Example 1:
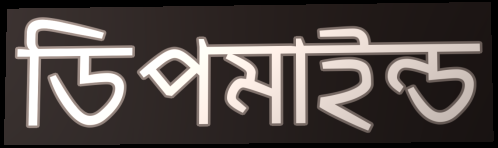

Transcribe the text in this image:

ডিপমাইন্ড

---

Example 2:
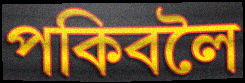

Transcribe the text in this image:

পকিবলৈ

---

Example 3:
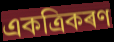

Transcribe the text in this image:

একত্ৰিকৰণ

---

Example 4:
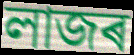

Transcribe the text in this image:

লাজৰ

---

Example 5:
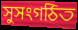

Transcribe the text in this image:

সুসংগঠিত